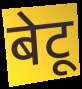
बेटू